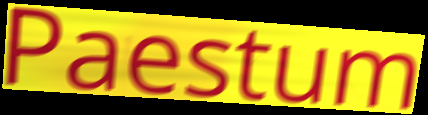
Paestum